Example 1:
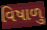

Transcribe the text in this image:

વિષાળુ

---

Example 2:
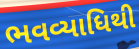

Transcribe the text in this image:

ભવવ્યાધિથી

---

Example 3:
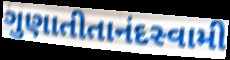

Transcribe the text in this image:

ગુણાતીતાનંદસ્વામી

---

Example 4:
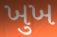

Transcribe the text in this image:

ખુખ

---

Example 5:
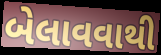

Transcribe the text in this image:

બેલાવવાથી